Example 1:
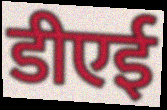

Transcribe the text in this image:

डीएई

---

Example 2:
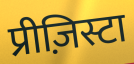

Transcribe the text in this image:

प्रीज़िस्टा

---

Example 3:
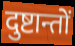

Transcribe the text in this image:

दुष्टान्तों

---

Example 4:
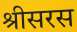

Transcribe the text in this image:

श्रीसरस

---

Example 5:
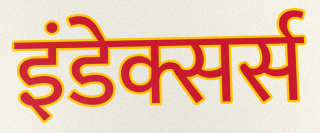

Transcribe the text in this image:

इंडेक्सर्स